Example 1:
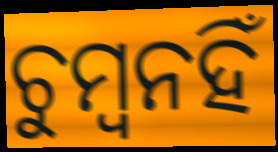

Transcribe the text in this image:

ଚୁମ୍ବନହିଁ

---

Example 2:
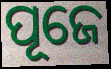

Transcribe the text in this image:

ପୂଜେ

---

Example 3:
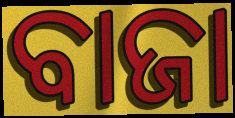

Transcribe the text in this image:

ବାଜା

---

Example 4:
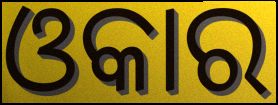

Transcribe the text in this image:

ଓକାର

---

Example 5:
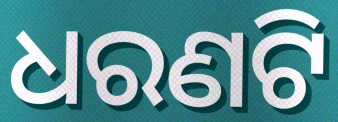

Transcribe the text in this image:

ଧରଣଟି